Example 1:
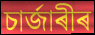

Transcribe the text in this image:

চাৰ্জাৰীৰ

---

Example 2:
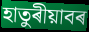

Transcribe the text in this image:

হাতুৰীয়াবৰ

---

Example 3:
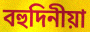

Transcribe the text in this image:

বহুদিনীয়া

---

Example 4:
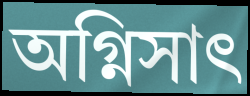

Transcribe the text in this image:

অগ্নিসাৎ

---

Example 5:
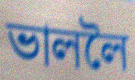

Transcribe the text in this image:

ভাললৈ